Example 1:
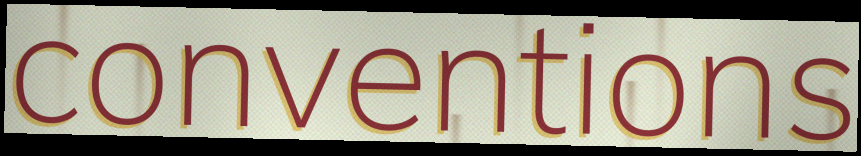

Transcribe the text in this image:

conventions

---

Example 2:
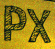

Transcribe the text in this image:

PX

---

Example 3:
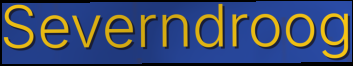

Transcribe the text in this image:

Severndroog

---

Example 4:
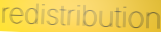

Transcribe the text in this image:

redistribution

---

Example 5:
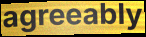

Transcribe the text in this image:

agreeably